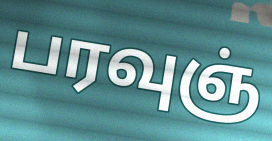
பரவுஞ்